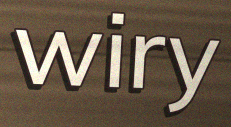
wiry